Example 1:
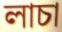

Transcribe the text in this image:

লাচা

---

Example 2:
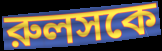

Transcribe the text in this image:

রুলসকে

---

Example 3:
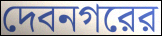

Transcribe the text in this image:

দেবনগরের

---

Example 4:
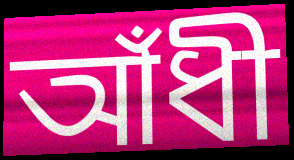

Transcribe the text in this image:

আঁধী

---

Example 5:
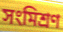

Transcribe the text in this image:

সংমিশ্রণ